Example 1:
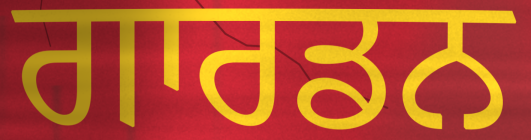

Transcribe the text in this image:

ਗਾਰਡਨ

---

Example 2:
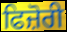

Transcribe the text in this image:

ਫਿਜ਼ੋਰੀ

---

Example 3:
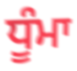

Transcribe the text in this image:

ਧੂੰਮਾ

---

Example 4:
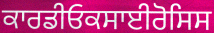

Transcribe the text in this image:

ਕਾਰਡੀਓਕਸਾਈਰੋਸਿਸ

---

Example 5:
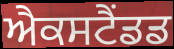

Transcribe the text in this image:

ਐਕਸਟੈਂਡਡ